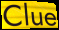
Clue